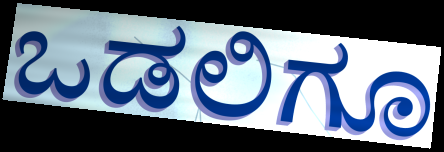
ಒಡಲಿಗೂ